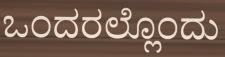
ಒಂದರಲ್ಲೊಂದು